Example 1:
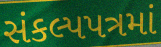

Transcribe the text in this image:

સંકલ્પપત્રમાં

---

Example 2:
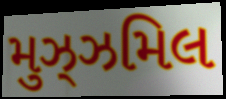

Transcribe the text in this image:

મુઝ્ઝમિલ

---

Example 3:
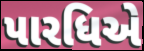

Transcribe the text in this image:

પારધિએ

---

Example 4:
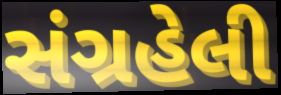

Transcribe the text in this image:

સંગ્રહેલી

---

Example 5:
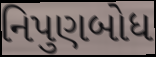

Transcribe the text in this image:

નિપુણબોધ